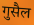
गुसैल